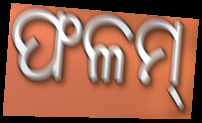
ଫଳମ୍